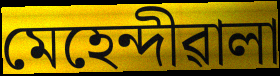
মেহেন্দীৱালা